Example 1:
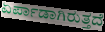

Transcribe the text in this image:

ಏರ್ಪಾಡಾಗಿರುತ್ತದೆ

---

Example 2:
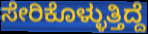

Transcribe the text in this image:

ಸೇರಿಕೊಳ್ಳುತ್ತಿದ್ದೆ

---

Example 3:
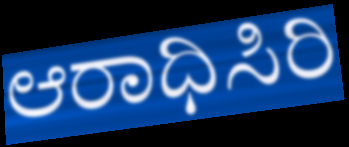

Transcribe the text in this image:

ಆರಾಧಿಸಿರಿ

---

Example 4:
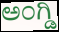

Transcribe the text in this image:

ಅಂಗ್ಡಿ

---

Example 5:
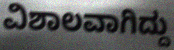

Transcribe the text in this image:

ವಿಶಾಲವಾಗಿದ್ದು